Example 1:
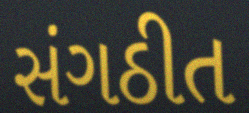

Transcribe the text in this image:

સંગઠીત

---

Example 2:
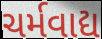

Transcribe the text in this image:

ચર્મવાદ્ય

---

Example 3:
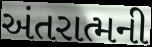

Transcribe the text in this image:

અંતરાત્મની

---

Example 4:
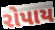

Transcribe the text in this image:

રોપાય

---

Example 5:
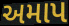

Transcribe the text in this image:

અમાપ